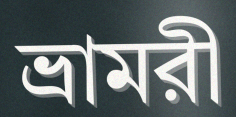
ভ্রামরী